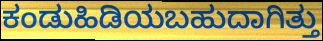
ಕಂಡುಹಿಡಿಯಬಹುದಾಗಿತ್ತು